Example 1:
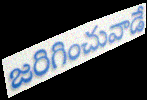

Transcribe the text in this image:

జరిగించువాడే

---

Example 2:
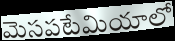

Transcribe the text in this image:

మెసపటేమియాలో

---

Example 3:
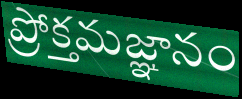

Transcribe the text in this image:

ప్రోక్తమజ్ఞానం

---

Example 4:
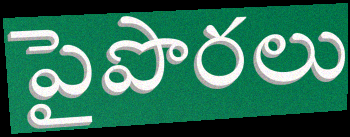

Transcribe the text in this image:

పైపొరలు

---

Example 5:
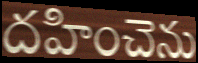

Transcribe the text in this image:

దహించెను